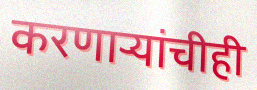
करणाऱ्यांचीही